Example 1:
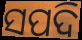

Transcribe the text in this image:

ସପଦି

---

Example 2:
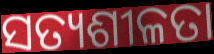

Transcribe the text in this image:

ସତ୍ୟଶୀଳତା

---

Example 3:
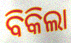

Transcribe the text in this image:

ବିକିଲା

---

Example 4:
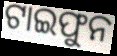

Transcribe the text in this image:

ଟାଇଫୁନ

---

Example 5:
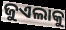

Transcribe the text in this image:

ଜୁଏଲାକୁ